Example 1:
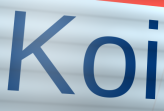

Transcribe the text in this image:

Koi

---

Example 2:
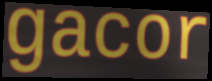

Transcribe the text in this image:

gacor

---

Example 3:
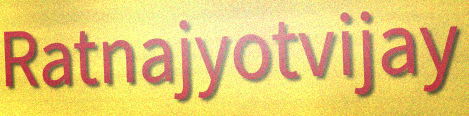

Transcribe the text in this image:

Ratnajyotvijay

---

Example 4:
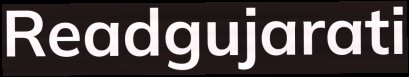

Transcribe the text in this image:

Readgujarati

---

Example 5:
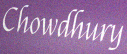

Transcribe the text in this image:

Chowdhury